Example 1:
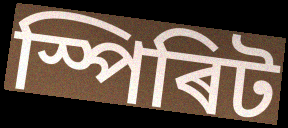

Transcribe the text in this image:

স্পিৰিট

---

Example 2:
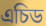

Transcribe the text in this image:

এচিড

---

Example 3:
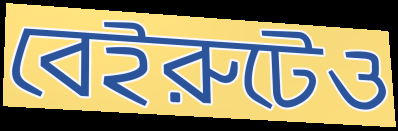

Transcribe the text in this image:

বেইৰুটেও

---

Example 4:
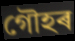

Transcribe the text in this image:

গৌহৰ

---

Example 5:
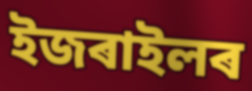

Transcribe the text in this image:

ইজৰাইলৰ